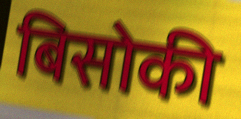
बिसोकी